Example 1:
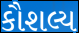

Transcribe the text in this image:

કૌશલ્ય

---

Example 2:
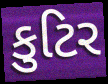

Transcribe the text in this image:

કુટિર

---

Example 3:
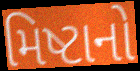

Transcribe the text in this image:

મિષ્ટાનો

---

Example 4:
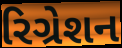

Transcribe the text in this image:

રિગ્રેશન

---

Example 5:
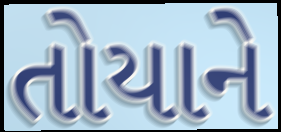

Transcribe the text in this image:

તોયાને